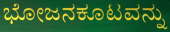
ಭೋಜನಕೂಟವನ್ನು